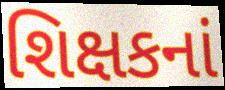
શિક્ષકનાં